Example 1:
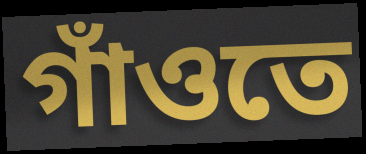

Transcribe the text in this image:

গাঁওতে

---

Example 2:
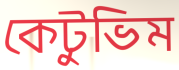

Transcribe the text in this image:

কেটুভিম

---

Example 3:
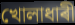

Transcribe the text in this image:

খোলাধাৰী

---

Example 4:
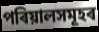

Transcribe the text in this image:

পৰিয়ালসমূহৰ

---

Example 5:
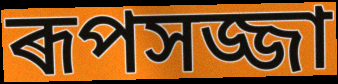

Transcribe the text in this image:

ৰূপসজ্জা